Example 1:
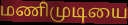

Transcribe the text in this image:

மணிமுடியை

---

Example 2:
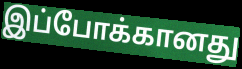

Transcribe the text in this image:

இப்போக்கானது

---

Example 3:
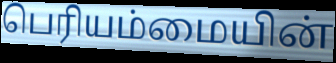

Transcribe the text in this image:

பெரியம்மையின்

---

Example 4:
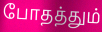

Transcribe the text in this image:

போதத்தும்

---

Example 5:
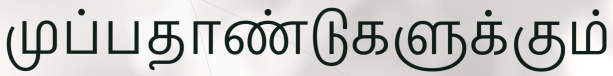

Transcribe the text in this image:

முப்பதாண்டுகளுக்கும்